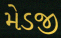
મેડજી